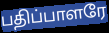
பதிப்பாளரே